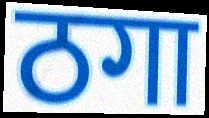
ठगा